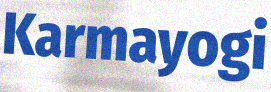
Karmayogi